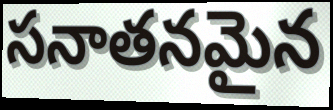
సనాతనమైన